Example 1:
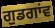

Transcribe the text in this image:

ਗੁਡਗਾਂਵ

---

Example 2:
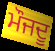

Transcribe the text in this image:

ਮੌਜਦੂ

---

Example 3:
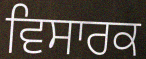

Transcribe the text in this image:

ਵਿਸਾਰਕ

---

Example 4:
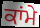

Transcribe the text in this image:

ਕਾਂਮੇ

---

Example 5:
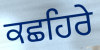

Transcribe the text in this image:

ਕਛਹਿਰੇ